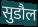
सुडौल